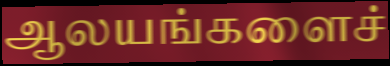
ஆலயங்களைச்